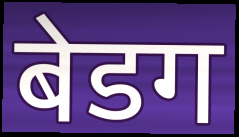
बेडग